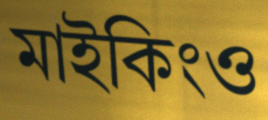
মাইকিংও